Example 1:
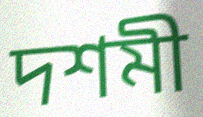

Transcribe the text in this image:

দশমী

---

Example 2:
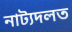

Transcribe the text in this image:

নাট্যদলত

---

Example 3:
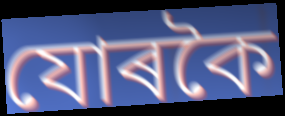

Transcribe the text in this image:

যোৰকৈ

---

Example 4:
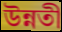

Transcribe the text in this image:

উন্নতী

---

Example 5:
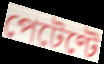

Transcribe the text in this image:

পেটেণ্টে